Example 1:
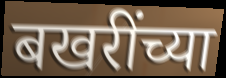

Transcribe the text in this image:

बखरींच्या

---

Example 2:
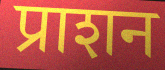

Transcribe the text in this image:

प्राशन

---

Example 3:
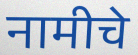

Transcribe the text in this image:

नामीचे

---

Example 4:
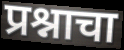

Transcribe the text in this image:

प्रश्नाचा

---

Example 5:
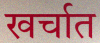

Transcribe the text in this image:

खर्चात